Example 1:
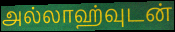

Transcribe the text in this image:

அல்லாஹ்வுடன்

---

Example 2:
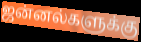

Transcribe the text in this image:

ஜன்னல்களுக்கு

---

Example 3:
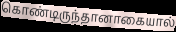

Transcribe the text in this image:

கொண்டிருந்தானாகையால்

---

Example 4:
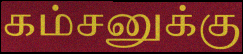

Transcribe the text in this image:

கம்சனுக்கு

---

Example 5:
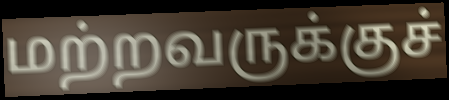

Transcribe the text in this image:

மற்றவருக்குச்